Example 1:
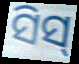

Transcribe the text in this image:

ସିସ୍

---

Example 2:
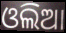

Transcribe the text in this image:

ଓଲିଆ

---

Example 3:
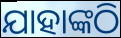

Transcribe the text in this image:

ଯାହାଙ୍କଠି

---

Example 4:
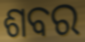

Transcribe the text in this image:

ଶବର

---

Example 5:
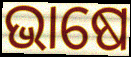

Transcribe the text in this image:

ଭାଷେ